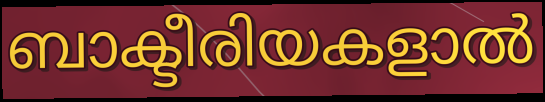
ബാക്ടീരിയകളാൽ